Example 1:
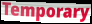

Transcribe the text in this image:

Temporary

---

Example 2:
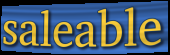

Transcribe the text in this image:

saleable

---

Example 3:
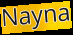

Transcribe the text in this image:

Nayna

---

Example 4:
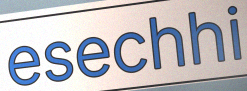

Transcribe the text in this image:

esechhi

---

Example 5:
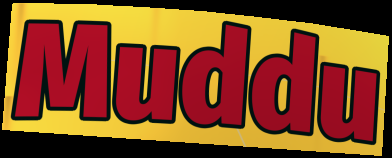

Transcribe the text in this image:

Muddu